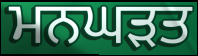
ਮਨਘੜਤ